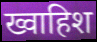
ख्वाहिश